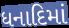
ધનાદિમાં